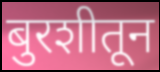
बुरशीतून